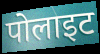
पोलाइट